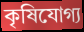
কৃষিযোগ্য